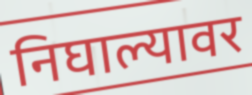
निघाल्यावर